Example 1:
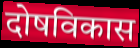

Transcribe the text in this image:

दोषविकास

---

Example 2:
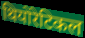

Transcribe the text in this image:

थियोरेटिकल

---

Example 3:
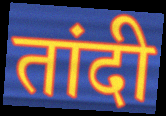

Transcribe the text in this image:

तांदी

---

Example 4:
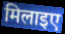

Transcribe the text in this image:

मिलाइए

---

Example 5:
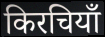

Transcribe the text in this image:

किरचियाँ